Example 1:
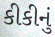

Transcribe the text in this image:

કીકીનું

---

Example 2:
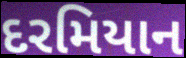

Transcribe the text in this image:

દરમિયાન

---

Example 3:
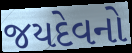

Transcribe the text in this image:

જયદેવનો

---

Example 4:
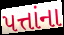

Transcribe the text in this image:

પત્તાંના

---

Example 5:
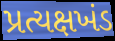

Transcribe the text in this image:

પ્રત્યક્ષખંડ